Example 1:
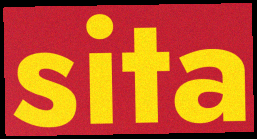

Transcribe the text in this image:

sita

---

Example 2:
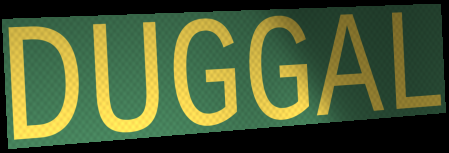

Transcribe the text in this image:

DUGGAL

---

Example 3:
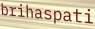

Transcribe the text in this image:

brihaspati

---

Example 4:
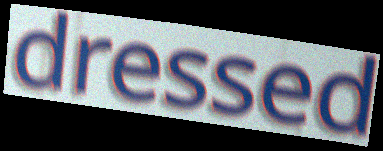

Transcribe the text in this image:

dressed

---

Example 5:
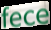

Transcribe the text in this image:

fece